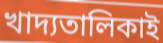
খাদ্যতালিকাই